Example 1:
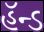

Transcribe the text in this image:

હૅન્ડ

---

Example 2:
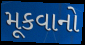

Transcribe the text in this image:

મૂકવાનો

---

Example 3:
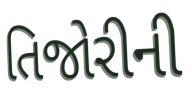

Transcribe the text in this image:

તિજોરીની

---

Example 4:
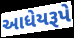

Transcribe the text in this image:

આધેયરૂપે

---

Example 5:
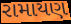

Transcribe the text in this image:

રામાયણ